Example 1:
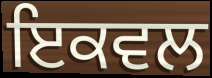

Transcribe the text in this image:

ਇਕਵਲ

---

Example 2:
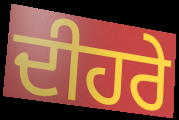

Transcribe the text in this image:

ਦੀਹਰੇ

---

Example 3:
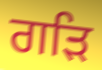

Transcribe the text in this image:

ਗੜਿ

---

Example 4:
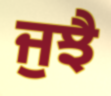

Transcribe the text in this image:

ਜੁਝੈ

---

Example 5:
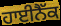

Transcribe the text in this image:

ਹਾਈਨੈੱਕ